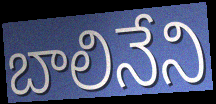
బాలినేని